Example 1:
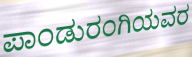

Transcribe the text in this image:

ಪಾಂಡುರಂಗಿಯವರ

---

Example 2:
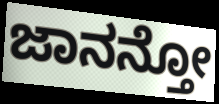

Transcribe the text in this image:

ಜಾನನ್ತೋ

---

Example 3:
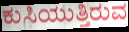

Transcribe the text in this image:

ಕುಸಿಯುತ್ತಿರುವ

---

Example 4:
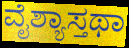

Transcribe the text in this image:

ವೈಶ್ಯಾಸ್ತಥಾ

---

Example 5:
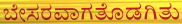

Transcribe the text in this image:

ಬೇಸರವಾಗತೊಡಗಿತು